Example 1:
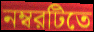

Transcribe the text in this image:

নম্বরটিতে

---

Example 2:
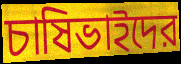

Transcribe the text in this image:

চাষিভাইদের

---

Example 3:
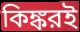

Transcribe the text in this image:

কিঙ্করই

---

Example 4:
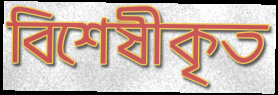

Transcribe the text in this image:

বিশেষীকৃত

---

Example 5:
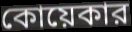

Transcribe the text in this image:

কোয়েকার